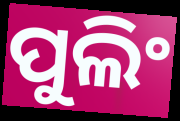
ପୁଲିଂ